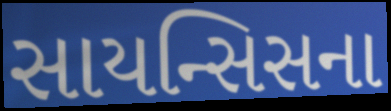
સાયન્સિસના